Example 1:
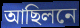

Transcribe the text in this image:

আছিলনে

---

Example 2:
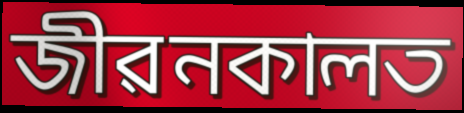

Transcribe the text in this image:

জীৱনকালত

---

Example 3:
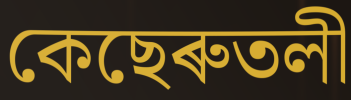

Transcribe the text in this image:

কেছেৰুতলী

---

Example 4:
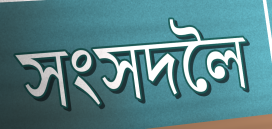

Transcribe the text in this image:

সংসদলৈ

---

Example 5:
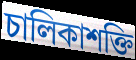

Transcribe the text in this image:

চালিকাশক্তি